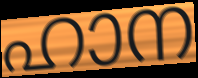
ഹാന